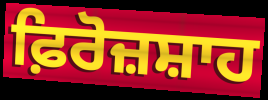
ਫ਼ਿਰੋਜ਼ਸ਼ਾਹ